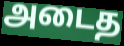
அடைத